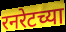
रनरेटच्या